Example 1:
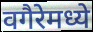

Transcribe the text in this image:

वगैरेमध्ये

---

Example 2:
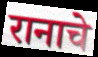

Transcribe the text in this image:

रानाचे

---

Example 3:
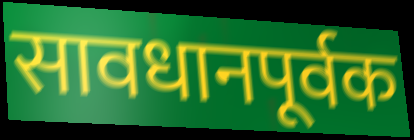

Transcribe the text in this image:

सावधानपूर्वक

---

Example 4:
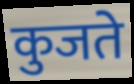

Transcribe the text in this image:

कुजते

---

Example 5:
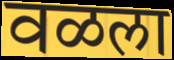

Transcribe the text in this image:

वळला